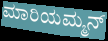
ಮಾರಿಯಮ್ಮನ್